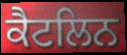
ਕੈਟਲਿਨ